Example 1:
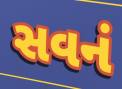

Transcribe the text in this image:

સવનં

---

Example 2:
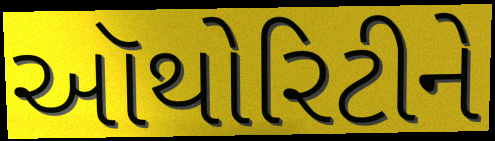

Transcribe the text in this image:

ઑથોરિટીને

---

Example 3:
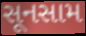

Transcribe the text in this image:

સૂનસામ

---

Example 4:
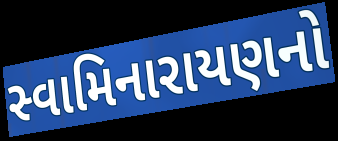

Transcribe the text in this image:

સ્વામિનારાયણનો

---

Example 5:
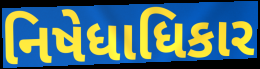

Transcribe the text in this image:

નિષેધાધિકાર